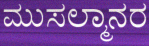
ಮುಸಲ್ಮಾನರ